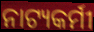
ନାଟ୍ୟକର୍ମୀ